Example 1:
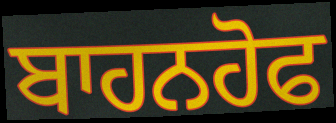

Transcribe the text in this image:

ਬਾਹਨਹੋਫ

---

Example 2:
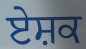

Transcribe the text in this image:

ਏਸ਼ਕ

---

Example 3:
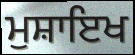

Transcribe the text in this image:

ਮੁਸ਼ਾਇਖ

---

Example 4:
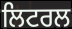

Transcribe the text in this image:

ਲਿਟਰਲ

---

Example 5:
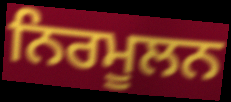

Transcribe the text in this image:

ਨਿਰਮੂਲਨ